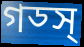
গড্স্